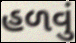
હળવું